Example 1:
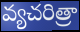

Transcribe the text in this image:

వ్యచరిత్రా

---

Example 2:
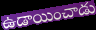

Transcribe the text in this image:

ఉడాయించాడు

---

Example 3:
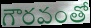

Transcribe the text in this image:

గౌరవంతో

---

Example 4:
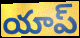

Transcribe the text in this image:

యాప్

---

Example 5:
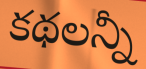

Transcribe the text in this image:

కథలన్నీ